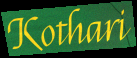
Kothari